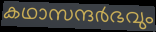
കഥാസന്ദർഭവും